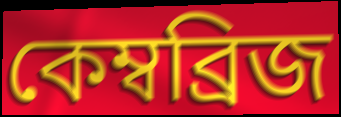
কেম্বব্ৰিজ